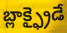
బ్లాక్ఫ్రైడే